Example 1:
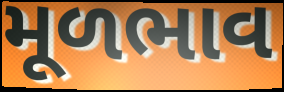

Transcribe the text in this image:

મૂળભાવ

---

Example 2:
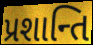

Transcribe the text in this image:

પ્રશાન્તિ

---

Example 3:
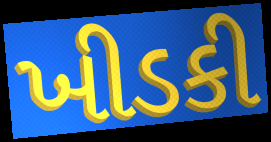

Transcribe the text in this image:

ખીડકી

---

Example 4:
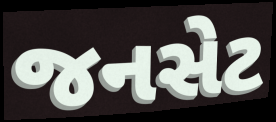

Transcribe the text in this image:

જનસેટ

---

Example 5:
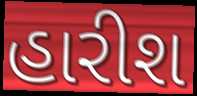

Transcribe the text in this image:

હારીશ